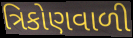
ત્રિકોણવાળી